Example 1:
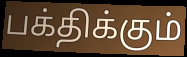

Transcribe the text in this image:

பக்திக்கும்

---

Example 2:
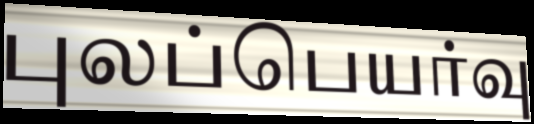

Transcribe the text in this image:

புலப்பெயர்வு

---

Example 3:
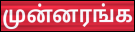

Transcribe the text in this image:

முன்னரங்க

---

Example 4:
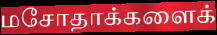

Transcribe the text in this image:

மசோதாக்களைக்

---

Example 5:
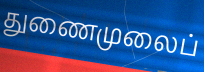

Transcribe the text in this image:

துணைமுலைப்